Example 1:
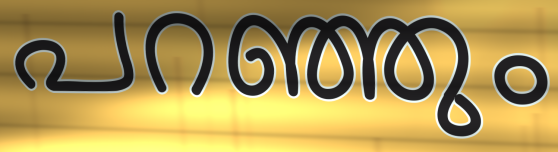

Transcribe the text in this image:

പറഞ്ഞും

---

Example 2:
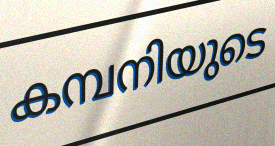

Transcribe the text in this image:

കമ്പനിയുടെ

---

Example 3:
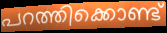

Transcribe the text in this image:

പറത്തിക്കൊണ്ട്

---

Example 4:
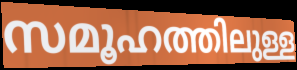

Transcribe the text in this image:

സമൂഹത്തിലുള്ള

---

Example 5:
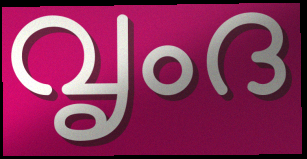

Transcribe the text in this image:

വൃംദ